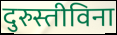
दुरुस्तीविना